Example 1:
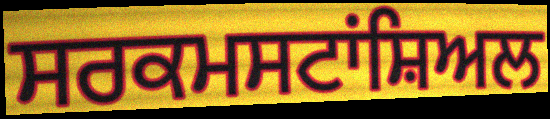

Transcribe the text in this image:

ਸਰਕਮਸਟਾਂਸ਼ਿਅਲ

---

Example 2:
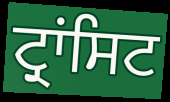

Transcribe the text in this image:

ਟ੍ਰਾਂਸਿਟ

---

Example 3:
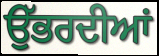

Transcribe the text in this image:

ਉੱਭਰਦੀਆਂ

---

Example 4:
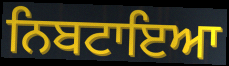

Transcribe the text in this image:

ਨਿਬਟਾਇਆ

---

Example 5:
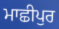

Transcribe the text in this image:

ਮਾਛੀਪੁਰ